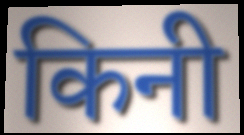
किनी